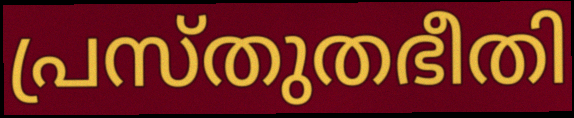
പ്രസ്തുതഭീതി